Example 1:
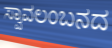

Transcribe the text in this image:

ಸ್ವಾವಲಂಬನದ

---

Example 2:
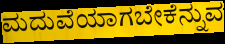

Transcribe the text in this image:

ಮದುವೆಯಾಗಬೇಕೆನ್ನುವ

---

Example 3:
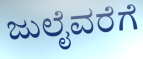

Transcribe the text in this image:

ಜುಲೈವರೆಗೆ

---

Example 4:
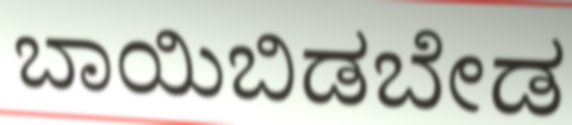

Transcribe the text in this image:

ಬಾಯಿಬಿಡಬೇಡ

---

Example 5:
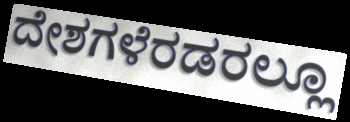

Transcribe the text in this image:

ದೇಶಗಳೆರಡರಲ್ಲೂ